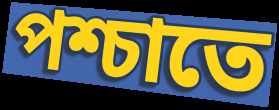
পশ্চাতে